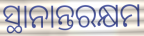
ସ୍ଥାନାନ୍ତରକ୍ଷମ